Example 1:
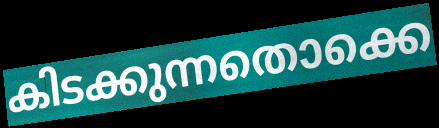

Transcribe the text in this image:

കിടക്കുന്നതൊക്കെ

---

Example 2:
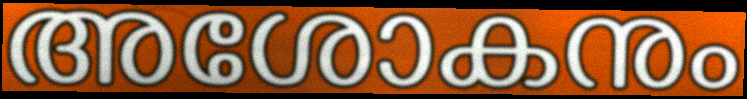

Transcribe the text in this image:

അശോകനും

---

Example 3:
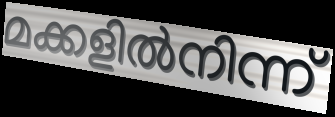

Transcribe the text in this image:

മക്കളിൽനിന്ന്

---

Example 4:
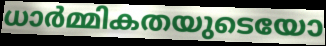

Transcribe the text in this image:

ധാർമ്മികതയുടെയോ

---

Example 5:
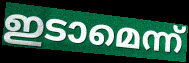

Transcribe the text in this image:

ഇടാമെന്ന്